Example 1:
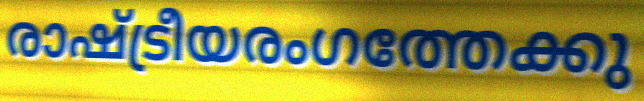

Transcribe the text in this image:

രാഷ്ട്രീയരംഗത്തേക്കു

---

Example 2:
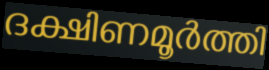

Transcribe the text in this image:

ദക്ഷിണമൂർത്തി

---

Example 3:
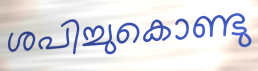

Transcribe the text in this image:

ശപിച്ചുകൊണ്ടു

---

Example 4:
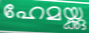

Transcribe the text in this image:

ഹേമയ്ക്കു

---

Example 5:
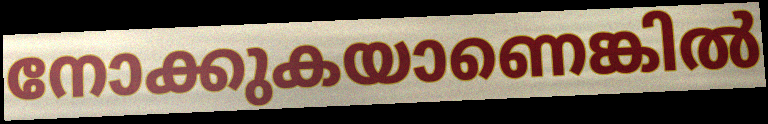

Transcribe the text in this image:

നോക്കുകയാണെങ്കിൽ